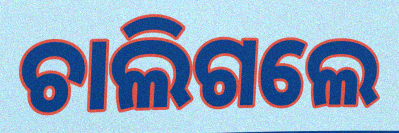
ଚାଲିଗଲେ